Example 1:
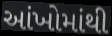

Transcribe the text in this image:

આંખોમાંથી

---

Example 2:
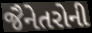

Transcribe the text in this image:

જૈનેતરોની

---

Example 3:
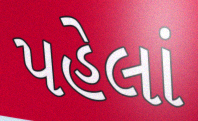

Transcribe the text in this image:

પહેલાં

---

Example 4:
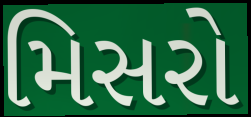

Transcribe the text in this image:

મિસરો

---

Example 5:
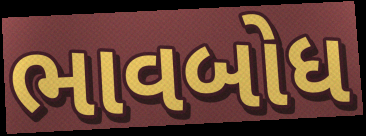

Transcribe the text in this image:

ભાવબોધ